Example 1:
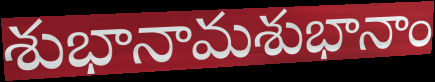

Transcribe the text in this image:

శుభానామశుభానాం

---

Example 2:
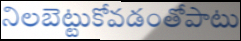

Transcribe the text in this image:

నిలబెట్టుకోవడంతోపాటు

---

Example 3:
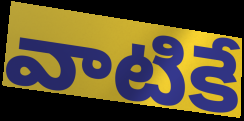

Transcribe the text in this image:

వాటికే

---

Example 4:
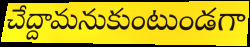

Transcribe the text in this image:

చేద్దామనుకుంటుండగా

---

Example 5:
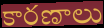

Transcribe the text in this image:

కారణాలు